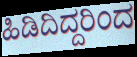
ಹಿಡಿದಿದ್ದರಿಂದ